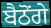
ਬੈਠੋਂਗੇ